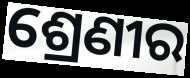
ଶ୍ରେଣୀର